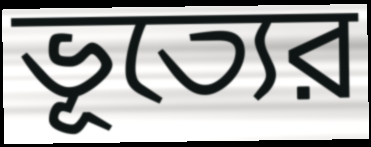
ভূত্যের